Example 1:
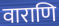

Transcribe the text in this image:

वाराणि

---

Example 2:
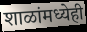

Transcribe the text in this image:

शाळांमध्येही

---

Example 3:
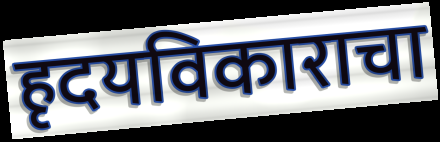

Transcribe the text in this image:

हृदयविकाराचा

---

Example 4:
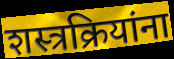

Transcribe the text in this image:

शस्त्रक्रियांना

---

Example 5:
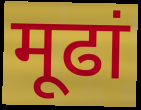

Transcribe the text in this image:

मूढां